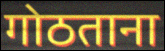
गोठताना